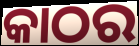
କାଠର